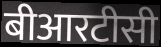
बीआरटीसी